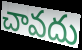
చావదు